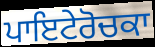
ਪਾਇਟੇਰੋਚਕਾ